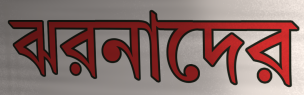
ঝরনাদের